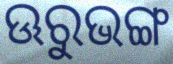
ଊରୁଭଙ୍ଗ